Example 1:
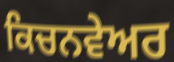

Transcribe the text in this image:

ਕਿਚਨਵੇਅਰ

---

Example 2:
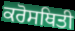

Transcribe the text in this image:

ਕਰੋਸਥਿਤੀ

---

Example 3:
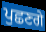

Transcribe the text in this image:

ਪੁਛਣਗੇ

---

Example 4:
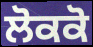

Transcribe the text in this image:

ਲੋਕਕੋ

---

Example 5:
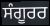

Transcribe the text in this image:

ਸੰਗੂਰਰ